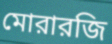
মোরারজি